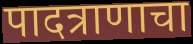
पादत्राणाचा